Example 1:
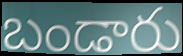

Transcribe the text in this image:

బండారు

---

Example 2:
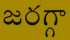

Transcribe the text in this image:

జరగ్గా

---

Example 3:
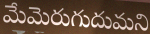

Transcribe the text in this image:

మేమెరుగుదుమని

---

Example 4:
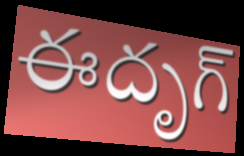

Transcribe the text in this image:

ఈదృగ్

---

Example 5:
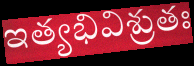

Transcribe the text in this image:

ఇత్యభివిశ్రుతః